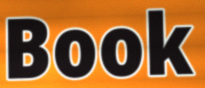
Book